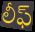
లీఫ్